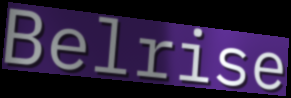
Belrise